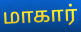
மாகார்